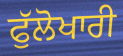
ਫੁੱਲੋਖਾਰੀ